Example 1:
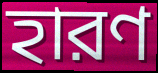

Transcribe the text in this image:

হারণ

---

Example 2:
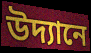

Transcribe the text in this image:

উদ্যানে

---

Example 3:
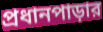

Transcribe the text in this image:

প্রধানপাড়ার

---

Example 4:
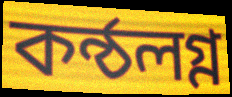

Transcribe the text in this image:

কন্ঠলগ্ন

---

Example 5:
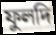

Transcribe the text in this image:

ফুলদি